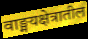
वाङ्मयक्षेत्रातील